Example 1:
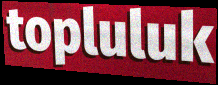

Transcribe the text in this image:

topluluk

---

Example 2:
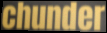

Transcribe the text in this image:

chunder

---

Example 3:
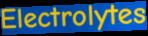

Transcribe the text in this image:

Electrolytes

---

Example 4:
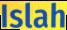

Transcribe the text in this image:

Islah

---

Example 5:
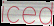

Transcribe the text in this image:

iced